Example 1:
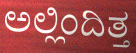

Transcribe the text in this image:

ಅಲ್ಲಿಂದಿತ್ತ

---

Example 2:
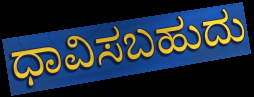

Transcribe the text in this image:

ಧಾವಿಸಬಹುದು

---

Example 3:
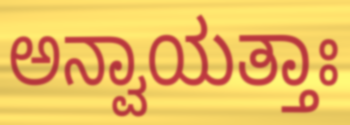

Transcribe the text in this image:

ಅನ್ವಾಯತ್ತಾಃ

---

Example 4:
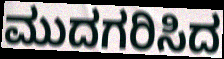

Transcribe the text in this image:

ಮುದಗರಿಸಿದ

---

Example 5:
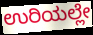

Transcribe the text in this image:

ಉರಿಯಲ್ಲೇ